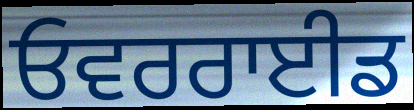
ਓਵਰਰਾਈਡ